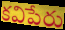
కవిపేరు